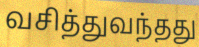
வசித்துவந்தது